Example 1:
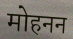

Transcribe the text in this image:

मोहनन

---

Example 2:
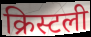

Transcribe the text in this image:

क्रिस्टली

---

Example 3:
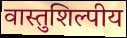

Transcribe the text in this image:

वास्तुशिल्पीय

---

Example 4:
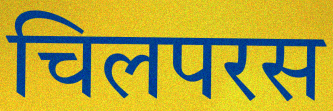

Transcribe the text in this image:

चिलपरस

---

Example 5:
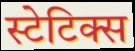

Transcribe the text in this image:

स्टेटिक्स